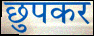
छुपकर